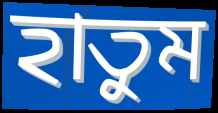
হাতুম